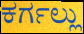
ಕರ್ಗಲ್ಲು